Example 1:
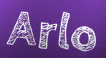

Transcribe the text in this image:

Arlo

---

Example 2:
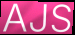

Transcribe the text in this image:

AJS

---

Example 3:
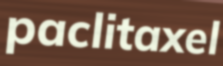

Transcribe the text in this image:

paclitaxel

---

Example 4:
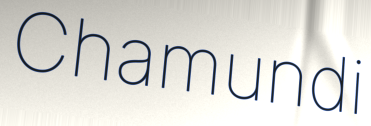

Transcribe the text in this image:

Chamundi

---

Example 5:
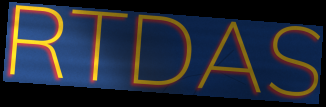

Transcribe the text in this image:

RTDAS